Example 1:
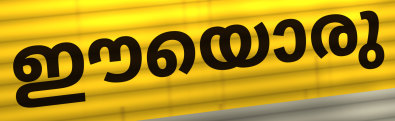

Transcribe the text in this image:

ഈയൊരു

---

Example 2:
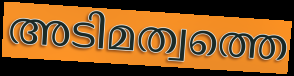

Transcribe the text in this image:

അടിമത്വത്തെ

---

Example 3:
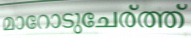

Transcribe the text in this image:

മാറോടുചേര്ത്ത്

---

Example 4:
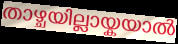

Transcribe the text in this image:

താഴ്ചയില്ലായ്കയാൽ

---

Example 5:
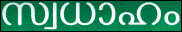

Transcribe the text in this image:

സ്വധാഹം